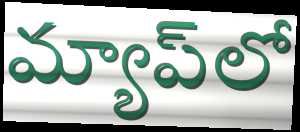
మ్యాప్‌లో